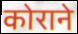
कोराने